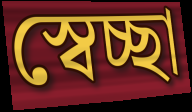
স্বেচ্ছা